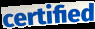
certified